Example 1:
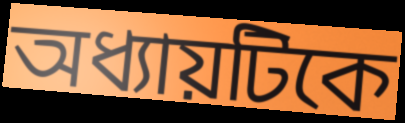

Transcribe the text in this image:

অধ্যায়টিকে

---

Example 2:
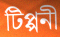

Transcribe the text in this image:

টিপ্পনী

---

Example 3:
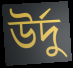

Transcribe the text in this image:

উর্দু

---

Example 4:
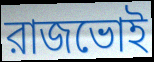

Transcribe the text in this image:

রাজভোই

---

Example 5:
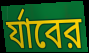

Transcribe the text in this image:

র্যাবের